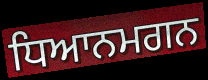
ਧਿਆਨਮਗਨ